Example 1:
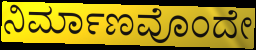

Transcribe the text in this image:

ನಿರ್ಮಾಣವೊಂದೇ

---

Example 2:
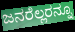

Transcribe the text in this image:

ಜನರೆಲ್ಲರನ್ನೂ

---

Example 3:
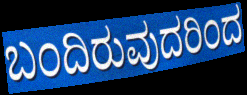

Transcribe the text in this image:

ಬಂದಿರುವುದರಿಂದ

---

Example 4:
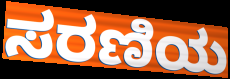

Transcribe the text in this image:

ಸರಣಿಯ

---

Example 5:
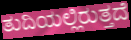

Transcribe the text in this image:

ತುದಿಯಲ್ಲಿರುತ್ತದೆ